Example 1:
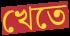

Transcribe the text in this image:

খেতে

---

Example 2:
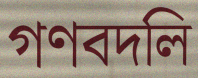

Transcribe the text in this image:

গণবদলি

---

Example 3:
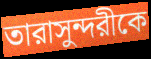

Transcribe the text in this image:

তারাসুন্দরীকে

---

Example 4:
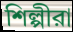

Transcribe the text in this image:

শিল্পীরা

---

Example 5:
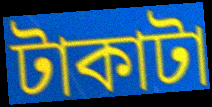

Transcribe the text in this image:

টাকাটা